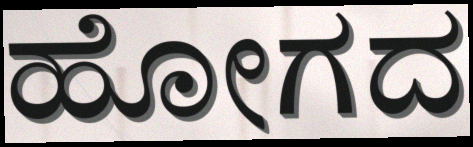
ಹೋಗದ